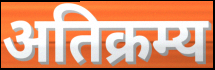
अतिक्रम्य